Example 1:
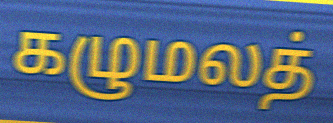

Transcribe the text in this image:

கழுமலத்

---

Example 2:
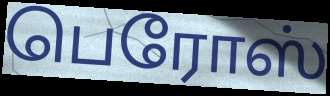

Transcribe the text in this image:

பெரோஸ்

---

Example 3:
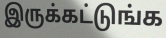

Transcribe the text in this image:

இருக்கட்டுங்க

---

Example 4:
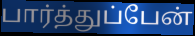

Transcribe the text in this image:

பார்த்துப்பேன்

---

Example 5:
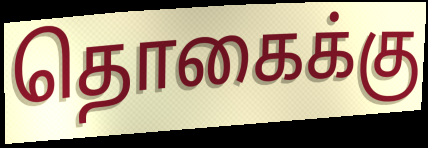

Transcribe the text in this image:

தொகைக்கு